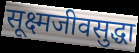
सूक्ष्मजीवसुद्धा